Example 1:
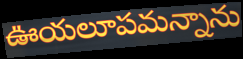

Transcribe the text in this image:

ఊయలూపమన్నాను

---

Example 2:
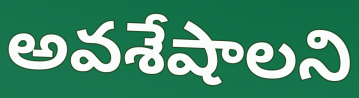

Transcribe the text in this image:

అవశేషాలని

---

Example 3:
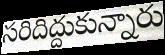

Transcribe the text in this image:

సరిదిద్దుకున్నారు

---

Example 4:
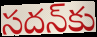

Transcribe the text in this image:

సదన్‌కు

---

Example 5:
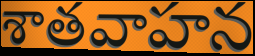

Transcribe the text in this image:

శాతవాహన